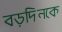
বড়দিনকে